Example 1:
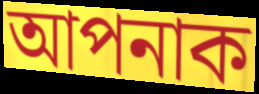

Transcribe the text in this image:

আপনাক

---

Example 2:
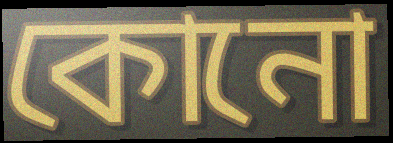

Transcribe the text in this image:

কোনো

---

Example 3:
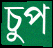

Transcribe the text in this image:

চুপ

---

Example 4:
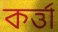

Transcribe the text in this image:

কৰ্ত্তা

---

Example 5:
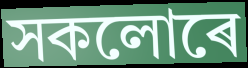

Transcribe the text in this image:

সকলোৰে